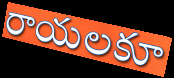
రాయలకూ